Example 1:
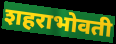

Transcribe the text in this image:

शहराभोवती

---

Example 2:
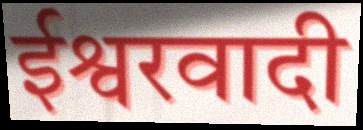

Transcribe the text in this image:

ईश्वरवादी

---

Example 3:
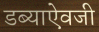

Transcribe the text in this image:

डब्याऐवजी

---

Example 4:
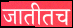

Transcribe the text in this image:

जातीतच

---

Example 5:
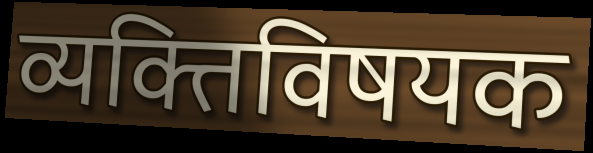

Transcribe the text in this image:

व्यक्तिविषयक